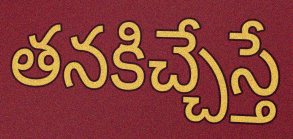
తనకిచ్చేస్తే